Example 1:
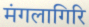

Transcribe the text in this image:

मंगलागिरि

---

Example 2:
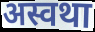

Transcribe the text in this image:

अस्वथा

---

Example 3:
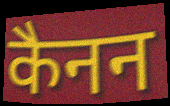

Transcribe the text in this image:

कैनन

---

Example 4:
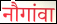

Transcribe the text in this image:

नौगांवा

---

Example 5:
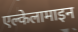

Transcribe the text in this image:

एल्केलामाइन